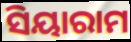
ସିୟାରାମ